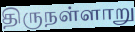
திருநள்ளாறு